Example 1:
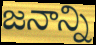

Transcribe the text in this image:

జనాన్ని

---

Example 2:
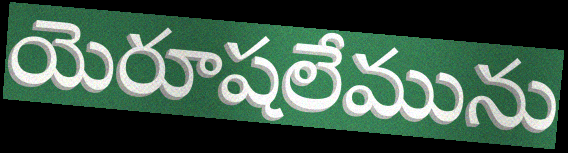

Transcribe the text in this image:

యెరూషలేమును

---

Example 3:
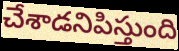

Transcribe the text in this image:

చేశాడనిపిస్తుంది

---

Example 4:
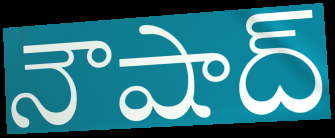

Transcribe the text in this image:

నౌషాద్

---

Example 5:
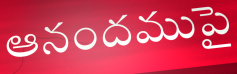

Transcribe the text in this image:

ఆనందముపై